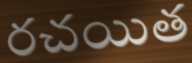
రచయిత